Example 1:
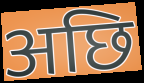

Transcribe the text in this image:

अछि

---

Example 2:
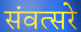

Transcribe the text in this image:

संवत्सरे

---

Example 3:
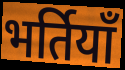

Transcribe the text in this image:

भर्तियाँ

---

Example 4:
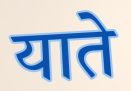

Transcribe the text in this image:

याते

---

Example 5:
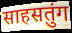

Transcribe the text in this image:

साहसतुंग